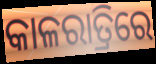
କାଳରାତ୍ରିରେ